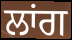
ਲਾਂਗ